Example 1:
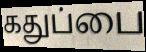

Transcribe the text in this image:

கதுப்பை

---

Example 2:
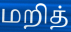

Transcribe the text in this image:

மறித்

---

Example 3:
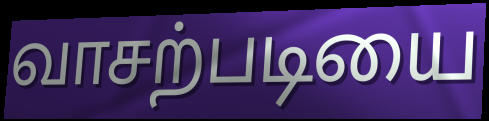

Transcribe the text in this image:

வாசற்படியை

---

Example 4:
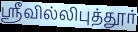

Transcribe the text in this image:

ஸ்ரீவில்லிபுத்தூர்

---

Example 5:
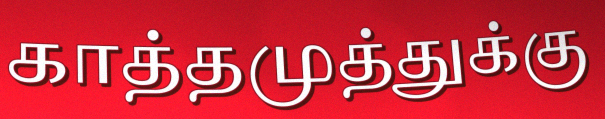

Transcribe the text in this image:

காத்தமுத்துக்கு